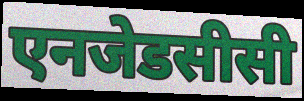
एनजेडसीसी